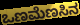
ಒಣಮೆಣಸಿನ